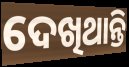
ଦେଖିଥାନ୍ତି